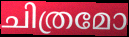
ചിത്രമോ